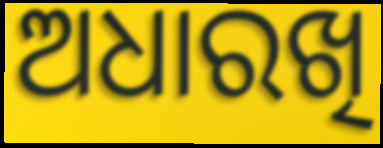
ଅଧାରଖି